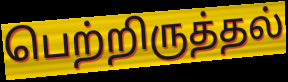
பெற்றிருத்தல்